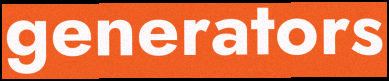
generators